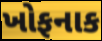
ખોફનાક